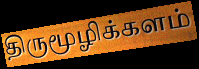
திருமூழிக்களம்